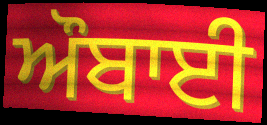
ਔਬਾਈ